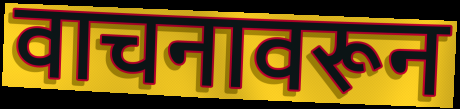
वाचनावरून